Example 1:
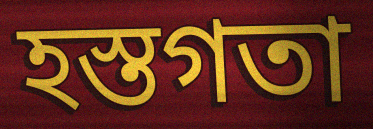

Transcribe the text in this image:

হস্তগতা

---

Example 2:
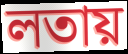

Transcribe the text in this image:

লতায়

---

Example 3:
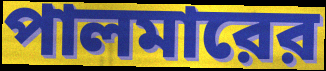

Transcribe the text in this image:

পালমারের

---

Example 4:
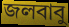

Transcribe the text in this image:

জলবাবু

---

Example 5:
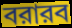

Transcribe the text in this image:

বরারব